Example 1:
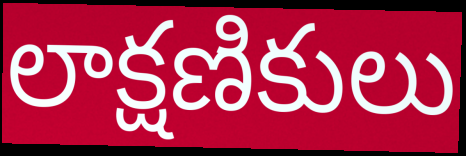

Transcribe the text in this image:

లాక్షణికులు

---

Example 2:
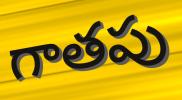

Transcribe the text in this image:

గాతపు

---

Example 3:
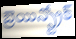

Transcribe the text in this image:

బ్రెయిన్స్ట్రోక్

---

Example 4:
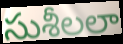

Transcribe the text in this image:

సుశీలలా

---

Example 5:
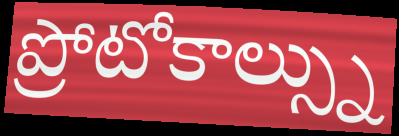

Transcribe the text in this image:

ప్రోటోకాల్స్ను